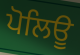
ਪੋਲਿਊ